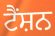
ਟੈਂਸ਼ਨ